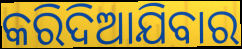
କରିଦିଆଯିବାର